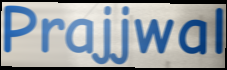
Prajjwal